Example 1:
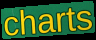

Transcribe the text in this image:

charts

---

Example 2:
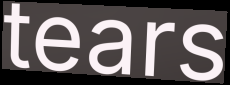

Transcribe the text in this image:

tears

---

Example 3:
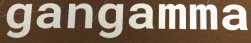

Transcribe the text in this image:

gangamma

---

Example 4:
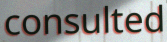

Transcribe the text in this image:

consulted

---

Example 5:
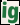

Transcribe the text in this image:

ig